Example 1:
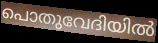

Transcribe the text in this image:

പൊതുവേദിയിൽ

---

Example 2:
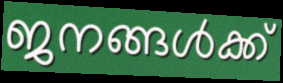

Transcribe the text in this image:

ജനങ്ങൾക്ക്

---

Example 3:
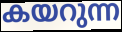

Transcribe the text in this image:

കയറുന്ന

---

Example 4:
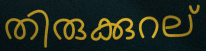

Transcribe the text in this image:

തിരുക്കുറല്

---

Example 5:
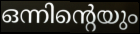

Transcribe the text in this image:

ഒന്നിന്റെയും